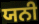
ਯਨੀ